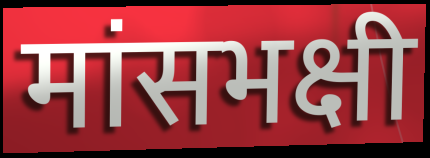
मांसभक्षी